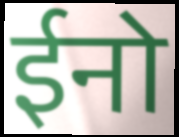
ईनो